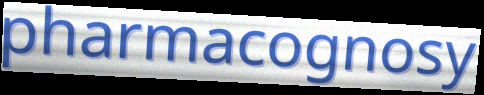
pharmacognosy